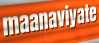
maanaviyate